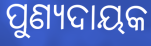
ପୁଣ୍ୟଦାୟକ